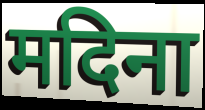
मदिना